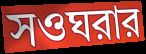
সওঘরার